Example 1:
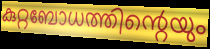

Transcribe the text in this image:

കുറ്റബോധത്തിന്റെയും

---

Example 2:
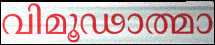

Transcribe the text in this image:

വിമൂഢാത്മാ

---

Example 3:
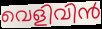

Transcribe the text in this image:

വെളിവിൻ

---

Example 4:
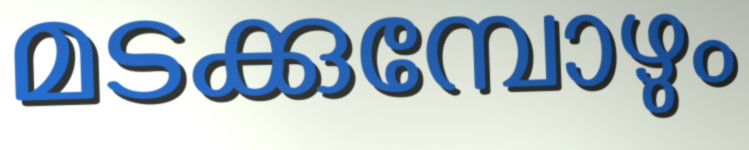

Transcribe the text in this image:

മടക്കുമ്പോഴും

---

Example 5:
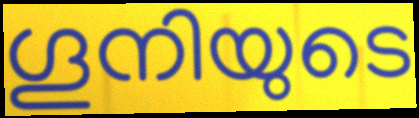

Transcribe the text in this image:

ഗൂനിയുടെ